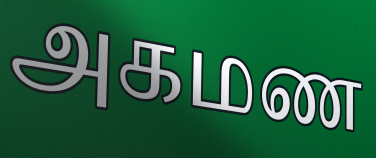
அகமண